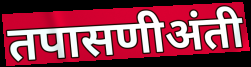
तपासणीअंती